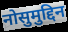
नोसुमुद्दिन